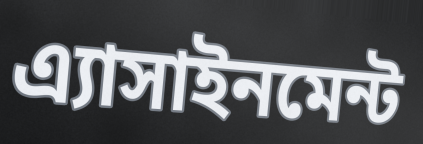
এ্যাসাইনমেন্ট